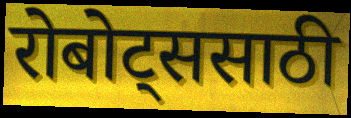
रोबोट्ससाठी